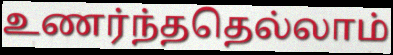
உணர்ந்ததெல்லாம்